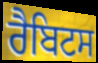
ਰੈਬਿਟਸ